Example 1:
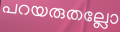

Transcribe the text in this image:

പറയരുതല്ലോ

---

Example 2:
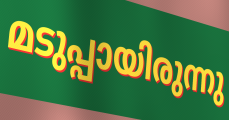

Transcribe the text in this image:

മടുപ്പായിരുന്നു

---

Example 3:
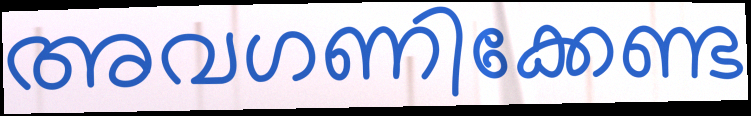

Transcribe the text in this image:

അവഗണിക്കേണ്ട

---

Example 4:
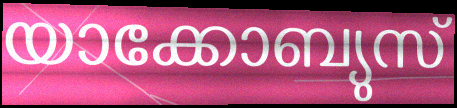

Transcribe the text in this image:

യാക്കോബ്യുസ്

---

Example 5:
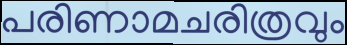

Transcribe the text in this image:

പരിണാമചരിത്രവും